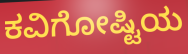
ಕವಿಗೋಷ್ಟಿಯ